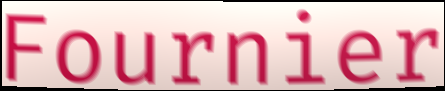
Fournier